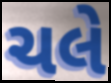
ચલે